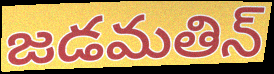
జడమతిన్